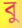
বু